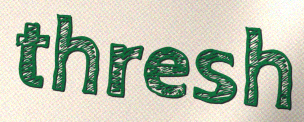
thresh